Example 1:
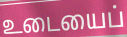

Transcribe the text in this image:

உடையைப்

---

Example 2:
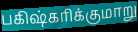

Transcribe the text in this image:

பகிஷ்கரிக்குமாறு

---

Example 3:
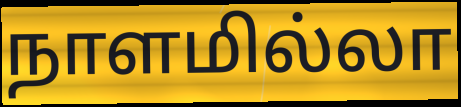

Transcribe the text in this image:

நாளமில்லா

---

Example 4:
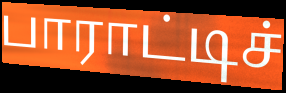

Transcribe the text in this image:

பாராட்டிச்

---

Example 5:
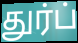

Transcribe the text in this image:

துர்ப்